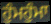
ਹੁੰਮਹੁੰਮਾ